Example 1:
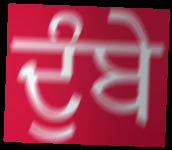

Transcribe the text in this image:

ਦੁੰਬੇ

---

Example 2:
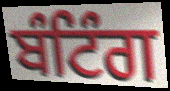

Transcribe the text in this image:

ਬੰਟਿੰਗ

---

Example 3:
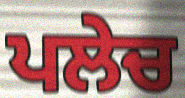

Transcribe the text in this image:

ਪਲੇਚ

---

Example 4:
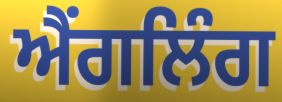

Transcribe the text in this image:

ਐਂਗਲਿੰਗ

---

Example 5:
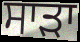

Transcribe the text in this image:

ਸਾੜਾ